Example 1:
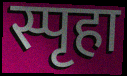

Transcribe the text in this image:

स्पृहा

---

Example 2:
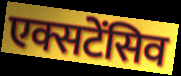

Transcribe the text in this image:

एक्सटेंसिव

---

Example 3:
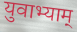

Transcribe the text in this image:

युवाभ्याम्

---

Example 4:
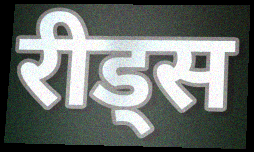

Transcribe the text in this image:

रीड्स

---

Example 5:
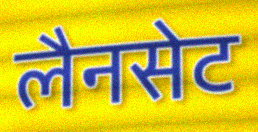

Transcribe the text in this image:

लैनसेट